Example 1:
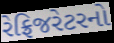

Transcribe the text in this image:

રેફ્રિજરેટરનો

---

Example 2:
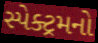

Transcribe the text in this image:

સ્પેક્ટ્રમનો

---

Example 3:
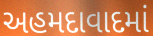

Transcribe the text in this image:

અહમદાવાદમાં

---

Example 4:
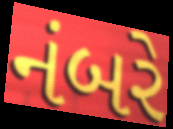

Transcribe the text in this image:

નંબરે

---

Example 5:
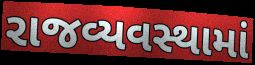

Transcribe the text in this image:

રાજવ્યવસ્થામાં